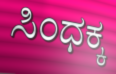
ಸಿಂಧಕ್ಕ